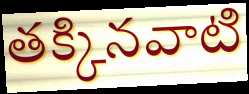
తక్కినవాటి